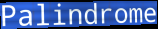
Palindrome